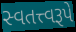
સ્વતત્ત્વરૂપે